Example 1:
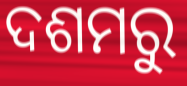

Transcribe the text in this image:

ଦଶମରୁ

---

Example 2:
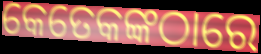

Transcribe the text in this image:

କେତେକଙ୍କଠାରେ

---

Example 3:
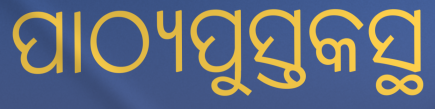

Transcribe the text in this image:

ପାଠ୍ୟପୁସ୍ତକସ୍ଥ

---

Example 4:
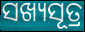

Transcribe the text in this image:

ସଖ୍ୟସୂତ୍ର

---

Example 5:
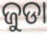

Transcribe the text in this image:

ଜୁଡା